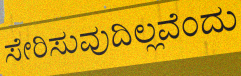
ಸೇರಿಸುವುದಿಲ್ಲವೆಂದು